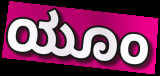
ಯೂಂ